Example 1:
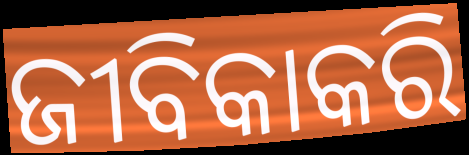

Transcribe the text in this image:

ଜୀବିକାକରି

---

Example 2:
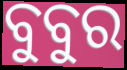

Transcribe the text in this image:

ବୁବୁର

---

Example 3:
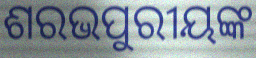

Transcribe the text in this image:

ଶରଭପୁରୀୟଙ୍କ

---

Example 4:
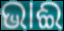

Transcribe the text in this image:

ଭାଈ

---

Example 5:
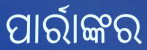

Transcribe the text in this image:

ପାର୍ରାଙ୍କର